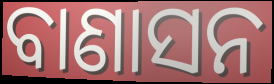
ବାଣାସନ